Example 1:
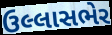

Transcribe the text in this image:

ઉલ્લાસભેર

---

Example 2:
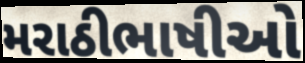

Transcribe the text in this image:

મરાઠીભાષીઓ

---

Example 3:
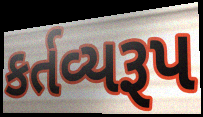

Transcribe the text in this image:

કર્તવ્યરૂપ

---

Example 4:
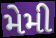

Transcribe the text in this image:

મેમી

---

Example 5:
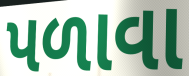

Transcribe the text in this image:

પળાવા